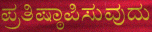
ಪ್ರತಿಷ್ಠಾಪಿಸುವುದು